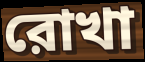
রোখা